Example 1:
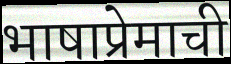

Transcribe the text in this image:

भाषाप्रेमाची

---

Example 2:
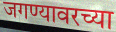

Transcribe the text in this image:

जगण्यावरच्या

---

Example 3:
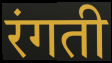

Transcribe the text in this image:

रंगती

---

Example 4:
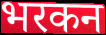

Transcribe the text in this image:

भरकन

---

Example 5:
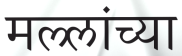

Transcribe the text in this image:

मल्लांच्या